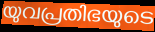
യുവപ്രതിഭയുടെ